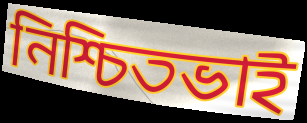
নিশ্চিতভাই